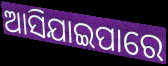
ଆସିଯାଇପାରେ